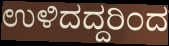
ಉಳಿದದ್ದರಿಂದ